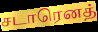
சடாரெனத்